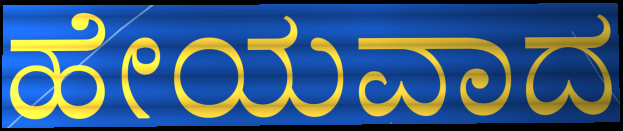
ಹೇಯವಾದ